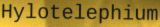
Hylotelephium